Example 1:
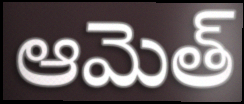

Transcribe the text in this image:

ఆమెత్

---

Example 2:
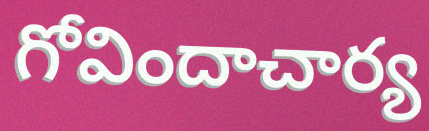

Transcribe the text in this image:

గోవిందాచార్య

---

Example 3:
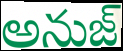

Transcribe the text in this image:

అనుజ్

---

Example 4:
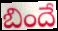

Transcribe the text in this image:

బిందే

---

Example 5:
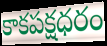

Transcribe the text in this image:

కాకపక్షధరం